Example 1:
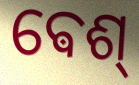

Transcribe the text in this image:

ଵେଶ୍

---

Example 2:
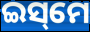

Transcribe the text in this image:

ଇସ୍‌ମେ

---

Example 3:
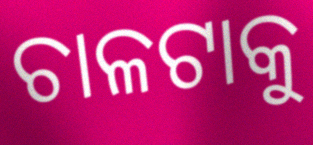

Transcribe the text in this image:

ଚାଳଟାକୁ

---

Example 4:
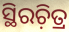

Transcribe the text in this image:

ସ୍ଥିରଚ଼ିତ୍ର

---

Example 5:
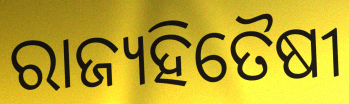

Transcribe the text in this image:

ରାଜ୍ୟହିତୈଷୀ